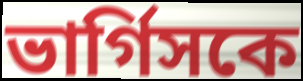
ভার্গিসকে